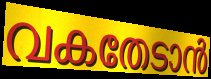
വകതേടാൻ